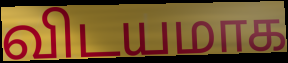
விடயமாக